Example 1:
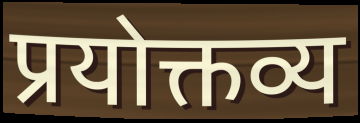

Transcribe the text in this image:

प्रयोक्तव्य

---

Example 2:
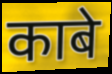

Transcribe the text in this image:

काबे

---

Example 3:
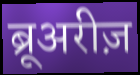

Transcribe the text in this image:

ब्रूअरीज़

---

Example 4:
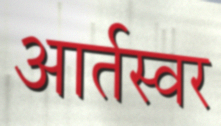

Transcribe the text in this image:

आर्तस्वर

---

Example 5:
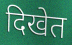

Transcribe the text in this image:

दिखेत